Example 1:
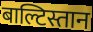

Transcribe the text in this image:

बाल्टिस्तान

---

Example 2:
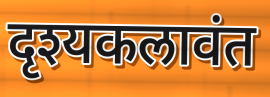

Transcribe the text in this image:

दृश्यकलावंत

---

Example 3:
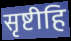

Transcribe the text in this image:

सृष्टीहि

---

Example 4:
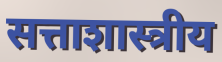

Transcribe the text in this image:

सत्ताशास्त्रीय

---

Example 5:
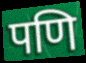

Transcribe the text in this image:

पणि